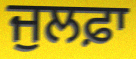
ਜੁਲਫ਼ਾ